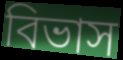
বিভাস